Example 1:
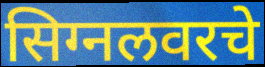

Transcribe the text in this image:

सिग्नलवरचे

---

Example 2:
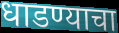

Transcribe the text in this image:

धाडण्याचा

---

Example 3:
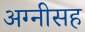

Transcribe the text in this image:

अग्नीसह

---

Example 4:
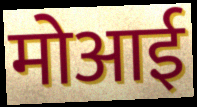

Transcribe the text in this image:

मोआई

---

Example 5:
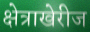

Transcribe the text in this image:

क्षेत्राखेरीज